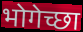
भोगेच्छा